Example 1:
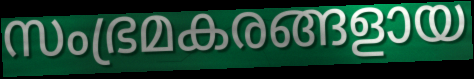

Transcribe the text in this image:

സംഭ്രമകരങ്ങളായ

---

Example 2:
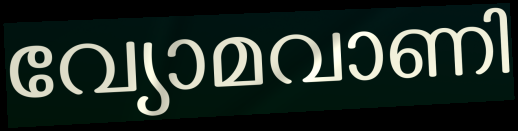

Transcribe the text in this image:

വ്യോമവാണി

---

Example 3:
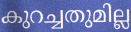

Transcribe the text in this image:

കുറച്ചതുമില്ല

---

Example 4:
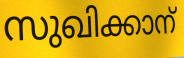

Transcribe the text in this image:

സുഖിക്കാന്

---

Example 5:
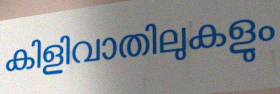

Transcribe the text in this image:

കിളിവാതിലുകളും